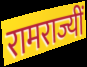
रामराज्यीं